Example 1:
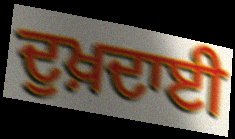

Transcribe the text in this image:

ਦੁਖ਼ਦਾਈ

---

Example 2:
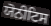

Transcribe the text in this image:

ਯੋਨੀਟਿਸ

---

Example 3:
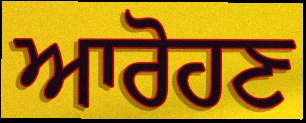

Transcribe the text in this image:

ਆਰੋਹਣ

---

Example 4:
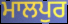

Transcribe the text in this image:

ਮਾਲਪੁਰ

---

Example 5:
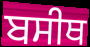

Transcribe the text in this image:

ਬਸੀਥ